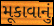
મૂકાવાનું